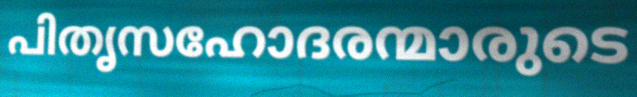
പിതൃസഹോദരന്മാരുടെ